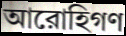
আরোহিগণ